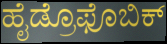
ಹೈಡ್ರೊಫೊಬಿಕ್